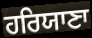
ਹਰਿਯਾਣਾ